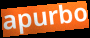
apurbo